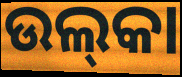
ଉଲ୍‌କା